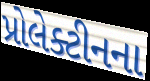
પ્રોલેક્ટીનના